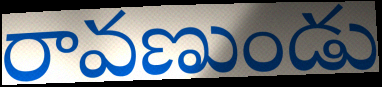
రావణుండు